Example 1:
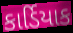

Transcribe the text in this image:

કાર્ડિયાક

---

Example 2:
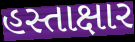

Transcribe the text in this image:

હસ્તાક્ષાર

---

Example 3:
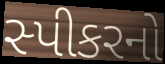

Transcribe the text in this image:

સ્પીકરનો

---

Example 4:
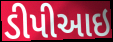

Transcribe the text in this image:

ડીપીઆઇ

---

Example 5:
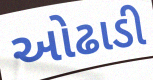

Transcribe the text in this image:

ઓઢાડી